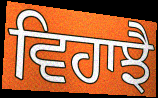
ਵਿਹਾਝੈ